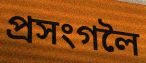
প্ৰসংগলৈ